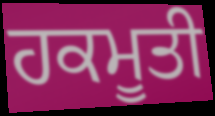
ਹਕਮੂਤੀ